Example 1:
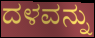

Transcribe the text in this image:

ದಳವನ್ನು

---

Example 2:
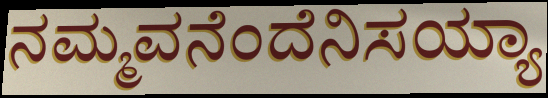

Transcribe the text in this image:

ನಮ್ಮವನೆಂದೆನಿಸಯ್ಯಾ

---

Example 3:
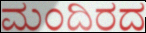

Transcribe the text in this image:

ಮಂದಿರದ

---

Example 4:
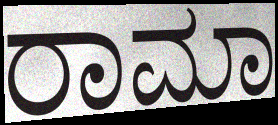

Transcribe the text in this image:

ರಾಮಾ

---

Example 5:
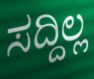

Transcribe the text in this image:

ಸದ್ದಿಲ್ಲ